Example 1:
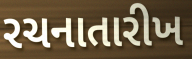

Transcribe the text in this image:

રચનાતારીખ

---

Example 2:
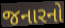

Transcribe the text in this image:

જનારનો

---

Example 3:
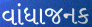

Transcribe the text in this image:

વાંધાજનક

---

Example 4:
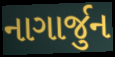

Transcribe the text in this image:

નાગાર્જુન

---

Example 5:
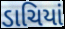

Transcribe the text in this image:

ડાચિયાં